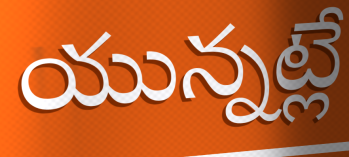
యున్నట్లే